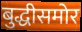
बुद्धीसमोर